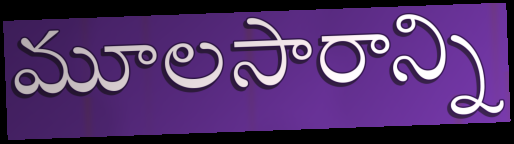
మూలసారాన్ని